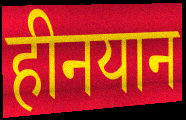
हीनयान